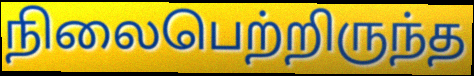
நிலைபெற்றிருந்த